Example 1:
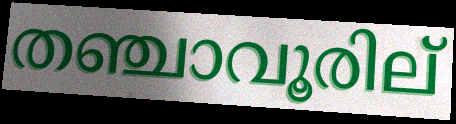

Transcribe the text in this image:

തഞ്ചാവൂരില്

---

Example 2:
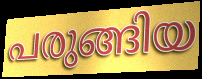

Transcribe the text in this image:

പരുങ്ങിയ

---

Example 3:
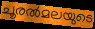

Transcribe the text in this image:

ചൂരൽമലയുടെ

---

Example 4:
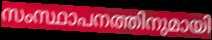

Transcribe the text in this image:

സംസ്ഥാപനത്തിനുമായി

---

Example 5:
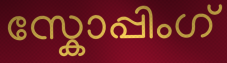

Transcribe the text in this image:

സ്കോപ്പിംഗ്